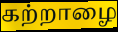
கற்றாழை